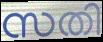
സതി